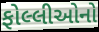
ફોલ્લીઓનો